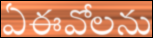
ఏఈవోలను